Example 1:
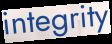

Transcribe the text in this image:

integrity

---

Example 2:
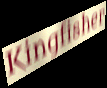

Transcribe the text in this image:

Kingfisher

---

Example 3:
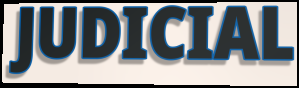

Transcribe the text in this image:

JUDICIAL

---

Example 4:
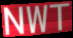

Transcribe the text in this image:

NWT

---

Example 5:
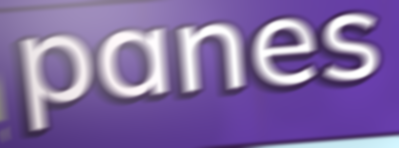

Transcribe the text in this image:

panes